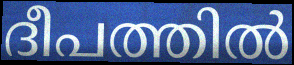
ദീപത്തിൽ